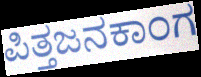
ಪಿತ್ತಜನಕಾಂಗ